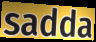
sadda